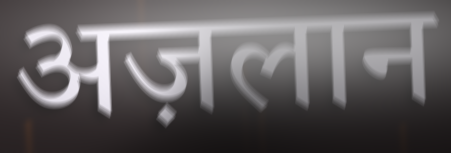
अज़लान